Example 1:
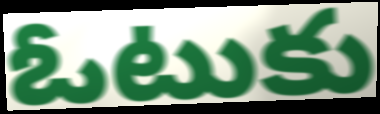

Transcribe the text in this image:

ఓటుకు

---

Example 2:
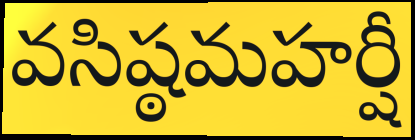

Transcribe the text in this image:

వసిష్ఠమహర్షీ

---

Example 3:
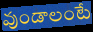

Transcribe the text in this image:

వుండాలంటే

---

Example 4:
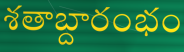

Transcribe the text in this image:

శతాబ్దారంభం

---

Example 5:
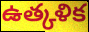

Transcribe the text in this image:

ఉత్కళిక